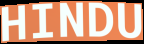
HINDU